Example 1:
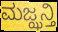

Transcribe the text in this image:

ಮಜ್ಝನ್ತಿ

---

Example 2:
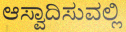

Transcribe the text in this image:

ಆಸ್ವಾದಿಸುವಲ್ಲಿ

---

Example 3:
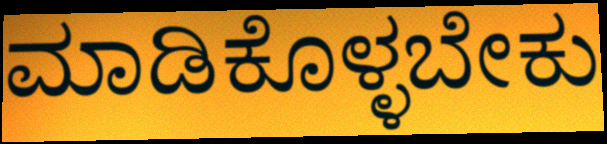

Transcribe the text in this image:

ಮಾಡಿಕೊಳ್ಳಬೇಕು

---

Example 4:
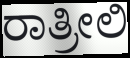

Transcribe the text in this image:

ರಾತ್ರೀಲಿ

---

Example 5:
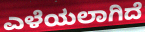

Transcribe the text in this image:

ಎಳೆಯಲಾಗಿದೆ